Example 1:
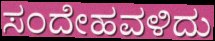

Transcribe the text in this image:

ಸಂದೇಹವಳಿದು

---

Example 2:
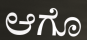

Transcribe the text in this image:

ಆಗೊ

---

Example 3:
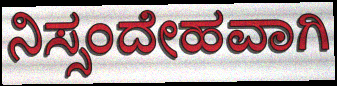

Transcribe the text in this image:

ನಿಸ್ಸಂದೇಹವಾಗಿ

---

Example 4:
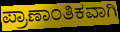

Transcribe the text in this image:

ಪ್ರಾಣಾಂತಿಕವಾಗಿ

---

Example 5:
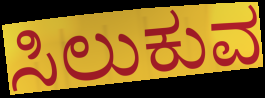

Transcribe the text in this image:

ಸಿಲುಕುವ